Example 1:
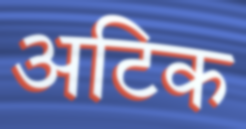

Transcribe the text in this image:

अटिक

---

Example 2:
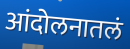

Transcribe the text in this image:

आंदोलनातलं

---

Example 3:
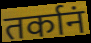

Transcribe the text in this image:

तर्कानं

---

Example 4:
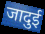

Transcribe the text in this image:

जादुई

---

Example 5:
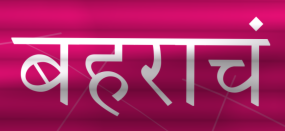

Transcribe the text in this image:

बहराचं